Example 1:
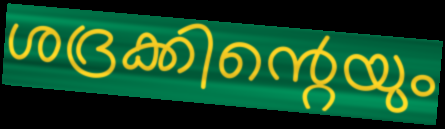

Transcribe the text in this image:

ശദ്രക്കിന്റെയും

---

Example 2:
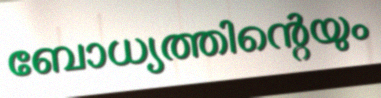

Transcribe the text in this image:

ബോധ്യത്തിന്റെയും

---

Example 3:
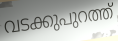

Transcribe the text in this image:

വടക്കുപുറത്ത്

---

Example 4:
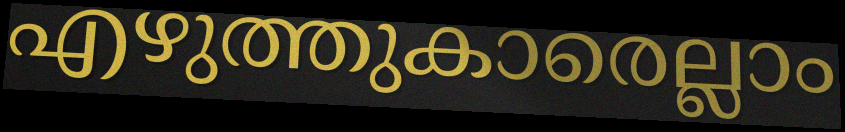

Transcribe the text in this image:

എഴുത്തുകാരെല്ലാം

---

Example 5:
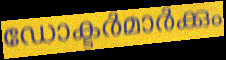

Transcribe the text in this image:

ഡോക്ടർമാർക്കും